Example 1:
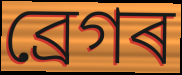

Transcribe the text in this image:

ব্ৰেগৰ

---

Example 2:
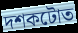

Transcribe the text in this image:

দশকটোত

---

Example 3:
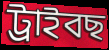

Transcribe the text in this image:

ট্ৰাইবছ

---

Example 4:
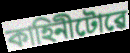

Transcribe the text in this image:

কাহিনীটোৱে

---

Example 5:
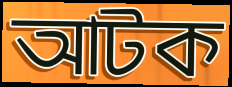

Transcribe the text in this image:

আটক